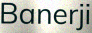
Banerji